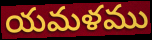
యమళము